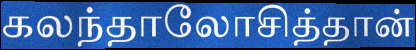
கலந்தாலோசித்தான்